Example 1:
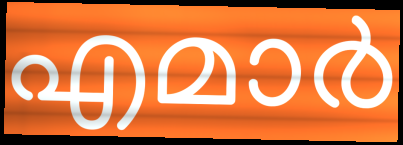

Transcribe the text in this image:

എമാർ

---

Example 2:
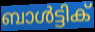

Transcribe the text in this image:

ബാൾട്ടിക്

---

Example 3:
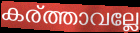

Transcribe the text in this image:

കര്ത്താവല്ലേ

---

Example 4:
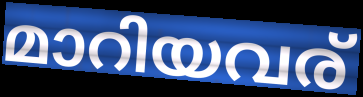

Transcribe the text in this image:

മാറിയവര്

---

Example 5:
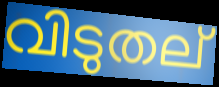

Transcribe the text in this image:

വിടുതല്